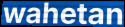
wahetan